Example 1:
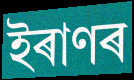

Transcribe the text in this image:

ইৰাণৰ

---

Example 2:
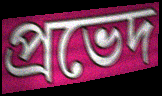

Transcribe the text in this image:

প্ৰভেদ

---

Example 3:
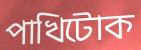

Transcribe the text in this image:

পাখিটোক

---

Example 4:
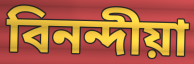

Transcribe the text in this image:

বিনন্দীয়া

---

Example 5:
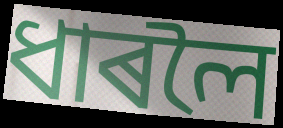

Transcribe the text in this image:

ধাৰলৈ